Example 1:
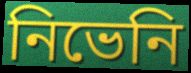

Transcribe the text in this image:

নিভেনি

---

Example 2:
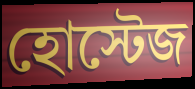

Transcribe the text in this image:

হোস্টেজ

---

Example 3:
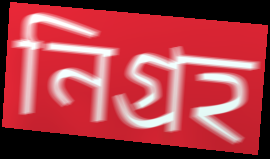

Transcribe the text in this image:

নিগ্রহ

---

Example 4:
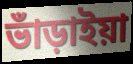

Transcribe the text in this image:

ভাঁড়াইয়া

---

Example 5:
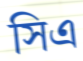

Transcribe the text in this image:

সিএ